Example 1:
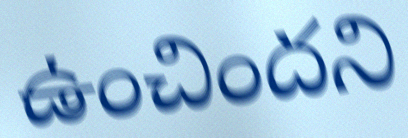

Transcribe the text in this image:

ఉంచిందని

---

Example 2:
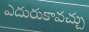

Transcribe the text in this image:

ఎదురుకావచ్చు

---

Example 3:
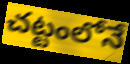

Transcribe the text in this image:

చట్టంలోనే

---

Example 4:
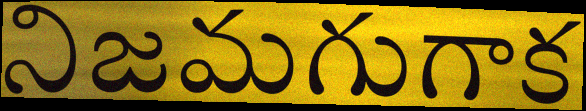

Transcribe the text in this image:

నిజమగుగాక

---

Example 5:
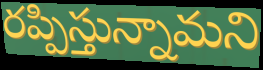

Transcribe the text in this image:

రప్పిస్తున్నామని